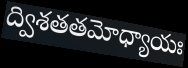
ద్విశతతమోధ్యాయః